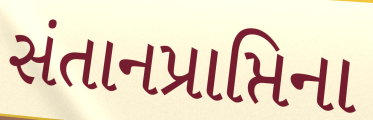
સંતાનપ્રાપ્તિના